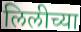
लिलीच्या